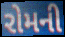
રોમની